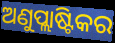
ଅଣୁପ୍ଲାଷ୍ଟିକର